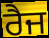
ਰੈਜ